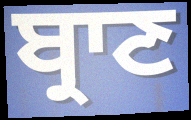
ਬ੍ਰਾਣ